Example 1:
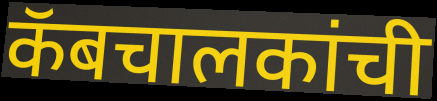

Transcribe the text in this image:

कॅबचालकांची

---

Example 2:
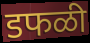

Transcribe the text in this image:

डफळी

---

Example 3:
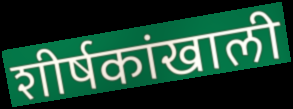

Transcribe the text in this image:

शीर्षकांखाली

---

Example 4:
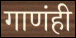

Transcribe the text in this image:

गाणंही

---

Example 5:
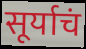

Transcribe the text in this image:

सूर्याचं